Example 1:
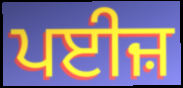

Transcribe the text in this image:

ਪਈਜ਼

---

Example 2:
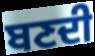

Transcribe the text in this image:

ਬਣਦੀ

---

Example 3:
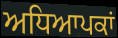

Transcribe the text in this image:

ਅਧਿਆਪਕਾਂ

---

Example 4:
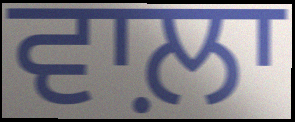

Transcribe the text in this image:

ਵਾਲ਼ਾ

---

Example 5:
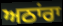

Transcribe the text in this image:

ਅਠਾਂਰਾ